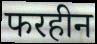
फरहीन